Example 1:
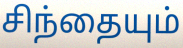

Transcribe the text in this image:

சிந்தையும்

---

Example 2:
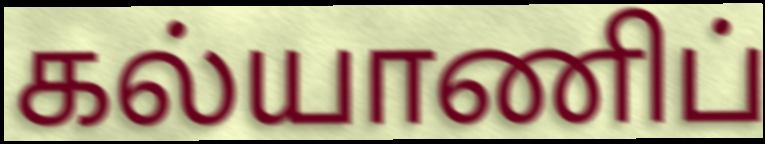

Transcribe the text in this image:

கல்யாணிப்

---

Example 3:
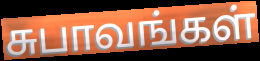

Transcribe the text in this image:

சுபாவங்கள்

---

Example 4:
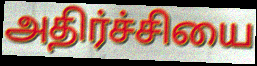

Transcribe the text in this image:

அதிர்ச்சியை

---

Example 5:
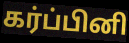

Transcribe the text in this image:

கர்ப்பினி